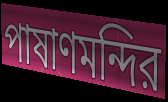
পাষাণমন্দির